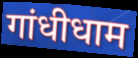
गांधीधाम